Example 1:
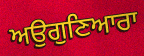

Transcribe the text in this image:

ਅਉਗੁਣਿਆਰਾ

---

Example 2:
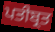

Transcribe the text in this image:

ਪਤੀਬ੍ਰਤ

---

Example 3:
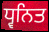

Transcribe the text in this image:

ਧ੍ਵਨਿਤ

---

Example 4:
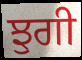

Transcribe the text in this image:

ਝੁਗੀ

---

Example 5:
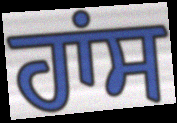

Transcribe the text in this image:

ਹਾਂਸ